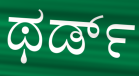
ಥರ್ಡ್